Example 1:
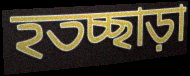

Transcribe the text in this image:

হতচ্ছাড়া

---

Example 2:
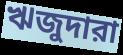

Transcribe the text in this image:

ঋজুদারা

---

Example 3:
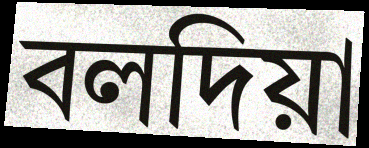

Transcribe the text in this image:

বলদিয়া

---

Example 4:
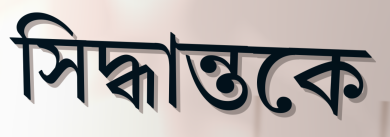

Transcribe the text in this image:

সিদ্ধান্তকে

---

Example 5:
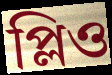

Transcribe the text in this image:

প্লিও